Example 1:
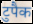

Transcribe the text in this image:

टुपैक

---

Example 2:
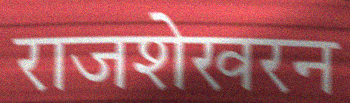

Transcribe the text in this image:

राजशेखरन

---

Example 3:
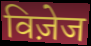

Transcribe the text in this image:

विज़ेज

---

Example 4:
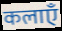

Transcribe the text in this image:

कलाएँ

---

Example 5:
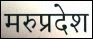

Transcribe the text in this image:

मरुप्रदेश